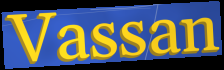
Vassan